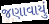
જણાવાયું